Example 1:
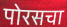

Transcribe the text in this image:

पोरसचा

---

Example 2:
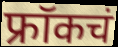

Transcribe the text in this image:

फ्रॉकचं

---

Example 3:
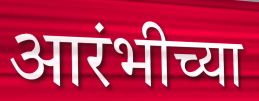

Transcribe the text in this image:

आरंभीच्या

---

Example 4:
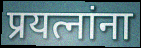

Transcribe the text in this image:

प्रयत्नांना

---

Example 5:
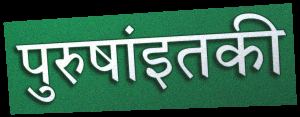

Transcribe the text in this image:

पुरुषांइतकी